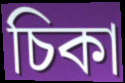
চিকা